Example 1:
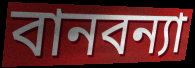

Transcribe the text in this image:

বানবন্যা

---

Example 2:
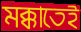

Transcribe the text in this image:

মক্কাতেই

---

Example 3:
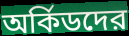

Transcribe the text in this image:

অর্কিডদের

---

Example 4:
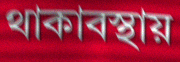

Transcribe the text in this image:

থাকাবস্থায়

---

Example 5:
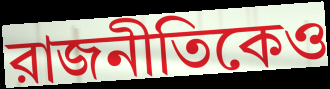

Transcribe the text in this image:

রাজনীতিকেও